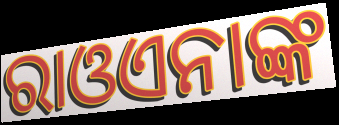
ରାଓଏନାଙ୍କ